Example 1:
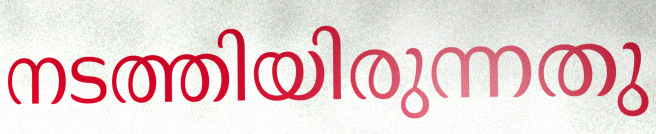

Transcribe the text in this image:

നടത്തിയിരുന്നതു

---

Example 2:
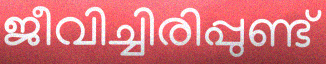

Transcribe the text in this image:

ജീവിച്ചിരിപ്പുണ്ട്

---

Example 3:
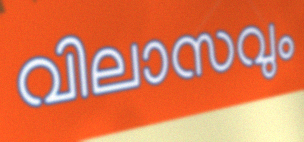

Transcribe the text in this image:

വിലാസവും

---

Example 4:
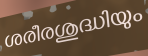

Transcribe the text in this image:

ശരീരശുദ്ധിയും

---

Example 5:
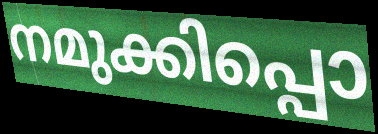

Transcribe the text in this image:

നമുക്കിപ്പൊ